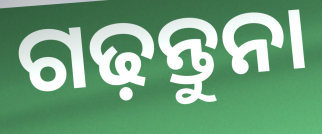
ଗଢ଼ନ୍ତୁନା